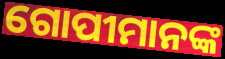
ଗୋପୀମାନଙ୍କ